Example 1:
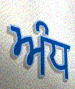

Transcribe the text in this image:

ਅੰਧ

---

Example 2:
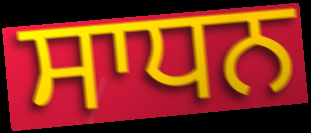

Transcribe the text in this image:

ਸਾਧਨ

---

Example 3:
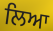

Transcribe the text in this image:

ਲਿਆ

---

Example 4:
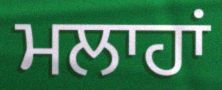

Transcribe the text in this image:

ਮਲਾਹਾਂ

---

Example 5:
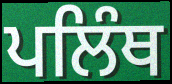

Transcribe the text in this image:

ਪਲਿੰਥ